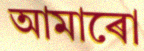
আমাৰো